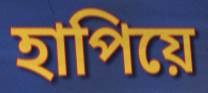
হাপিয়ে